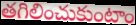
తగిలించుకుంటాం